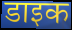
डाइक